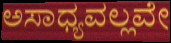
ಅಸಾಧ್ಯವಲ್ಲವೇ